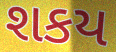
શકય